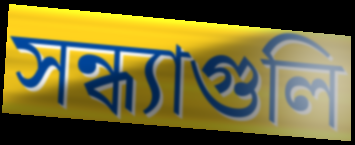
সন্ধ্যাগুলি